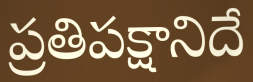
ప్రతిపక్షానిదే